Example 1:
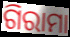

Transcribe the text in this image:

ଗିରାମା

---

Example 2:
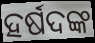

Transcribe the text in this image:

ହର୍ଷଦଙ୍କ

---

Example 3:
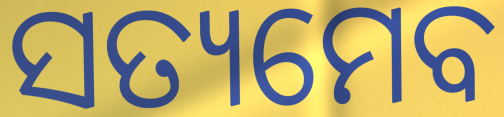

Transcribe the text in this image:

ସତ୍ୟମେବ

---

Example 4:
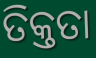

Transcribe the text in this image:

ତିକ୍ତତା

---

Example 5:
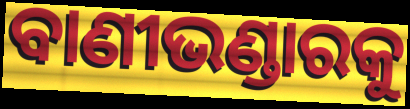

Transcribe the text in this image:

ବାଣୀଭଣ୍ଡାରକୁ